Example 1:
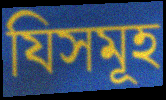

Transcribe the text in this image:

যিসমূহ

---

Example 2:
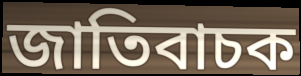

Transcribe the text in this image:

জাতিবাচক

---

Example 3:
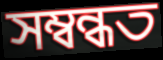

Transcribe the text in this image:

সম্বন্ধত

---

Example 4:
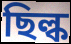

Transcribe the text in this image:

ছিল্ক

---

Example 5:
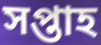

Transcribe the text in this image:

সপ্তাহ